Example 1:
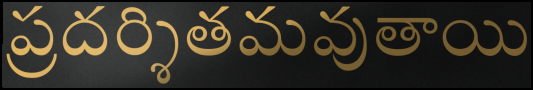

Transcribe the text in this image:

ప్రదర్శితమవుతాయి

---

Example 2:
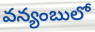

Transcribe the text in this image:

వన్యంబులో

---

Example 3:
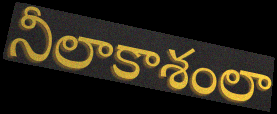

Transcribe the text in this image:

నీలాకాశంలా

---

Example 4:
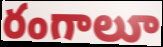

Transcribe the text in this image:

రంగాలూ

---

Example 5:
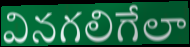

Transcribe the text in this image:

వినగలిగేలా